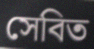
সেবিত